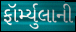
ફૉર્મ્યુલાની